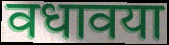
वधावया